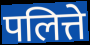
पलित्ते